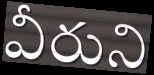
వీరుని